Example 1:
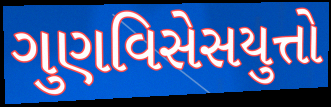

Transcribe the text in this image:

ગુણવિસેસયુત્તો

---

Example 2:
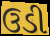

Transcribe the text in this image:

ઉડી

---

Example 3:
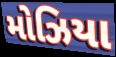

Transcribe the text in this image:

મોઝિયા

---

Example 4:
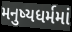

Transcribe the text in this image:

મનુષ્યધર્મમાં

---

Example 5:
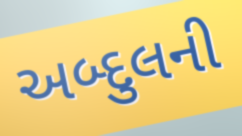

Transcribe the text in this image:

અબ્દુલની